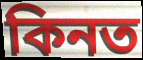
কিনত